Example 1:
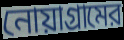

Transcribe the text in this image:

নোয়াগ্রামের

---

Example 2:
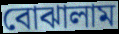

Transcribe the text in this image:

বোঝালাম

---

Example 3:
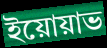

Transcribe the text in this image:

ইয়োয়াভ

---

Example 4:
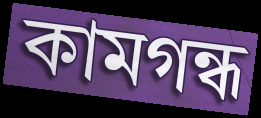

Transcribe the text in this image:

কামগন্ধ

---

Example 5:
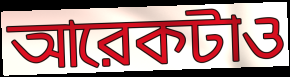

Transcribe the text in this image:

আরেকটাও